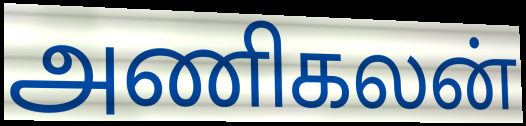
அணிகலன்